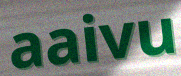
aaivu